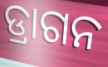
ଡ୍ରାଗନ